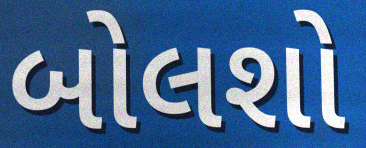
બોલશો